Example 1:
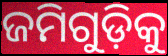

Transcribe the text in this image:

ଜମିଗୁଡ଼ିକୁ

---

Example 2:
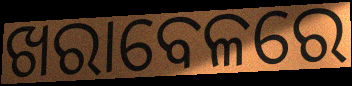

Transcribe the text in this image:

ଖରାବେଳରେ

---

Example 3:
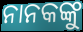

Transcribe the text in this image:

ନାନକଙ୍କୁ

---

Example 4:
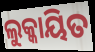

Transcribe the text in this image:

ଲୁକ୍କାୟିତ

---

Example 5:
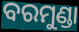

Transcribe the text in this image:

ବରମୁଣ୍ଡା